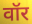
वॉर